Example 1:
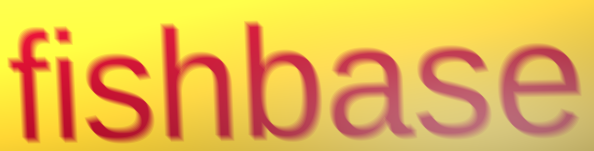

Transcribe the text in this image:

fishbase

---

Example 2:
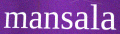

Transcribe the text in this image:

mansala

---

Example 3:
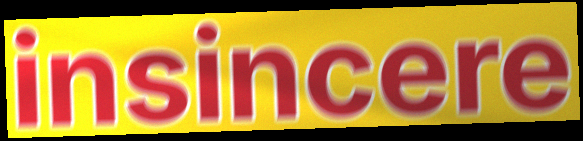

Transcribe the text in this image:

insincere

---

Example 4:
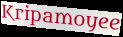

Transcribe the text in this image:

Kripamoyee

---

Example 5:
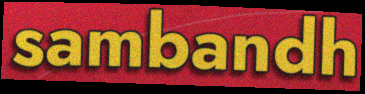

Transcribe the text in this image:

sambandh